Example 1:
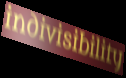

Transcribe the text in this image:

indivisibility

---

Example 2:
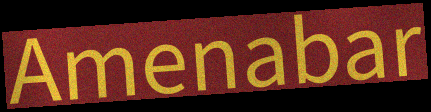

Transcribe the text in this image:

Amenabar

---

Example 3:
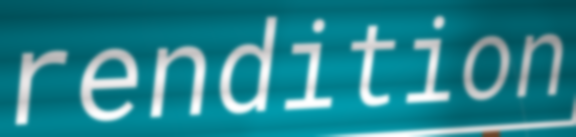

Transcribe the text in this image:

rendition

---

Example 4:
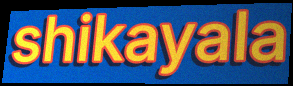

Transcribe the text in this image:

shikayala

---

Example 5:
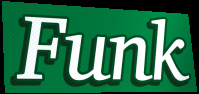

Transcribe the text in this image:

Funk